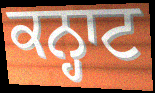
ਕਨ੍ਹਾਟ